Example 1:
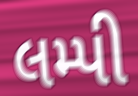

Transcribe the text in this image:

લમ્પી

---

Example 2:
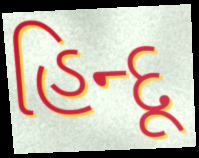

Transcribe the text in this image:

હિન્દૂ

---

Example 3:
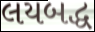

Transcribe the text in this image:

લયબદ્ધ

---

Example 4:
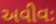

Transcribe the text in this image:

અવીવઃ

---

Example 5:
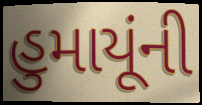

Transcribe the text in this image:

હુમાયૂંની